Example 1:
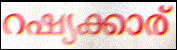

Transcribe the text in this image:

റഷ്യക്കാര്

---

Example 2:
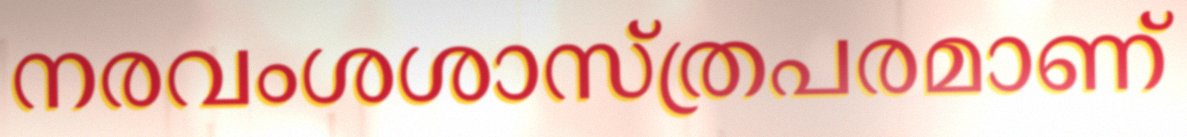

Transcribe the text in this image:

നരവംശശാസ്ത്രപരമാണ്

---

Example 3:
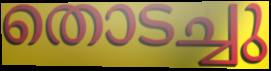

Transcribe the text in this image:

തൊടച്ചു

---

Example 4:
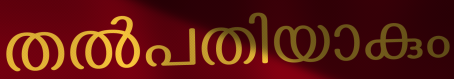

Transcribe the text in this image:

തൽപതിയാകും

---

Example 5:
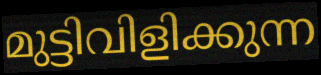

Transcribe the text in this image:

മുട്ടിവിളിക്കുന്ന